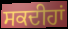
ਸਕਦੀਹਾਂ